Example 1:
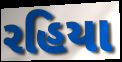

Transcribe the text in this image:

રહિયા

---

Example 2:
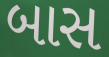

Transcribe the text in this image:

બાસ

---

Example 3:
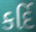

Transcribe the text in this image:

કર્દિ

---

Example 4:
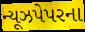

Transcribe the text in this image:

ન્યૂઝપેપરના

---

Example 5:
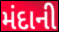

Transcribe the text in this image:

મંદાની